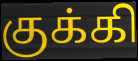
குக்கி